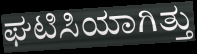
ಘಟಿಸಿಯಾಗಿತ್ತು